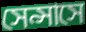
সেন্সাসে